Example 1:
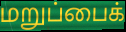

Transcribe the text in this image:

மறுப்பைக்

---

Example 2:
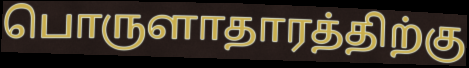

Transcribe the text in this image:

பொருளாதாரத்திற்கு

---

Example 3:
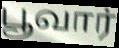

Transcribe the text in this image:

பூவார்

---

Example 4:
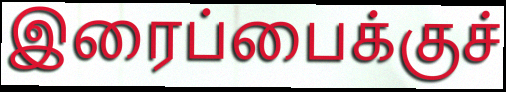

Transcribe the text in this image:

இரைப்பைக்குச்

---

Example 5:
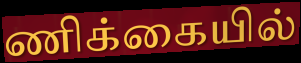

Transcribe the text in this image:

ணிக்கையில்